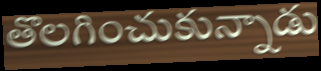
తొలగించుకున్నాడు